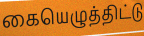
கையெழுத்திட்டு